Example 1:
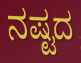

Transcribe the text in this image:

ನಷ್ಟದ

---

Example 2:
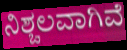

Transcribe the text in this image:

ನಿಶ್ಚಲವಾಗಿವೆ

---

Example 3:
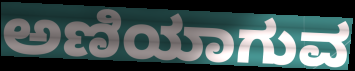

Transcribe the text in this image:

ಅಣಿಯಾಗುವ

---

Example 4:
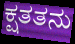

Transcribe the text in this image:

ಕ್ಷತತನು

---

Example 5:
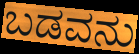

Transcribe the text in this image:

ಬಡವನು